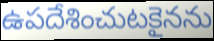
ఉపదేశించుటకైనను